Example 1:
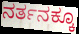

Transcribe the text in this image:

ನರ್ತನಕ್ಕೂ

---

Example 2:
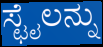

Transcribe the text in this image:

ಸ್ಟೈಲನ್ನು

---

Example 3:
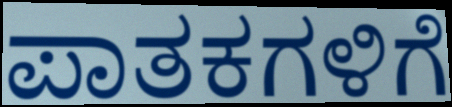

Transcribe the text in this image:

ಪಾತಕಗಳಿಗೆ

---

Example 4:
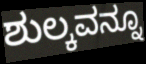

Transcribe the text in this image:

ಶುಲ್ಕವನ್ನೂ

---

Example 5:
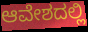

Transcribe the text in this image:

ಆವೇಶದಲ್ಲಿ